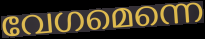
വേഗമെന്നെ